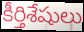
కీర్తిశేషులు